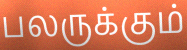
பலருக்கும்